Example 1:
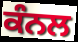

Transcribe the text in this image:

ਕੰਨਲ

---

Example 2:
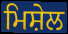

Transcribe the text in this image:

ਮਿਸ਼ੇਲ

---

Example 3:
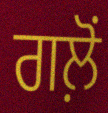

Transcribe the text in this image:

ਗਲ਼ੋਂ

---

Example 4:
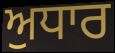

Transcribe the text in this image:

ਅੁਧਾਰ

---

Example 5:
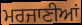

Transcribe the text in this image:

ਮਰਜਾਣੀਆਂ